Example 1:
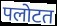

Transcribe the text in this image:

पलोटत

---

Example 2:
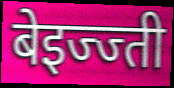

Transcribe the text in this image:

बेइज्ज्ती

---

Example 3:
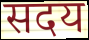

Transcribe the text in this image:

सदय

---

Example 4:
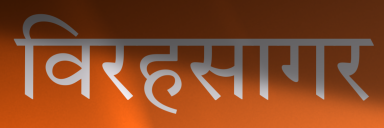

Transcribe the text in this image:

विरहसागर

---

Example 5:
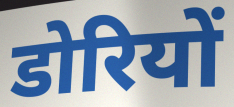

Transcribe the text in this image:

डोरियों